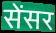
सेंसर